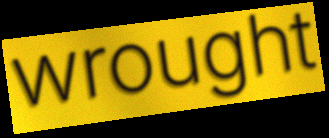
wrought